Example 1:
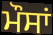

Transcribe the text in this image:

ਮੌਸਾਂ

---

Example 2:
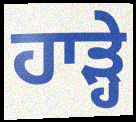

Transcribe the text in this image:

ਹਾੜ੍ਹੇ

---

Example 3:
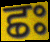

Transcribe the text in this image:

ਛਃ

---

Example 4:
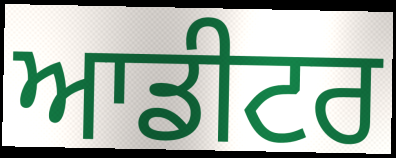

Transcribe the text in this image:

ਆਡੀਟਰ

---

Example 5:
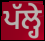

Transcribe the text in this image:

ਪੱਲ੍ਹੇ